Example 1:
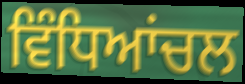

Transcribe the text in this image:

ਵਿੰਧਿਆਂਚਲ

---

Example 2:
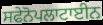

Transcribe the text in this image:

ਸਫੇਨੋਪਲਾਟਾਈਨ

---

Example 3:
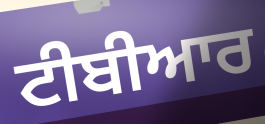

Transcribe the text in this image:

ਟੀਬੀਆਰ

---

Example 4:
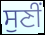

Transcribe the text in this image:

ਸੁਣੀਂ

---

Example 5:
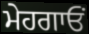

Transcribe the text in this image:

ਮੇਹਗਾਓਂ